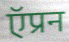
ऍप्रन